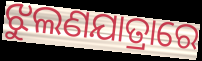
ଝୁଲଣଯାତ୍ରାରେ